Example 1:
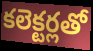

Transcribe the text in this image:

కలెక్టర్లతో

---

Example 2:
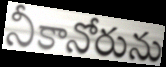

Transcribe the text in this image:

నీకానోరును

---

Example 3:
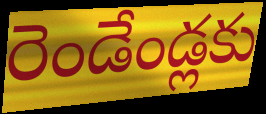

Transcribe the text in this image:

రెండేండ్లకు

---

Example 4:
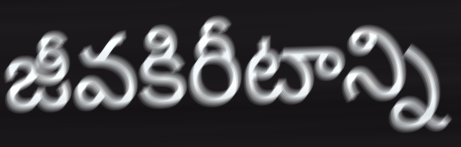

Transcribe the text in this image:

జీవకిరీటాన్ని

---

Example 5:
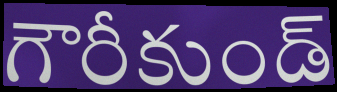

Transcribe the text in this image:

గౌరీకుండ్